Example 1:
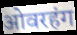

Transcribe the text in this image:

ओवरहंग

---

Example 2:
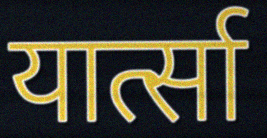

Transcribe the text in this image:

यार्त्सा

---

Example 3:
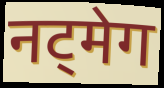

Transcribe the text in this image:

नट्मेग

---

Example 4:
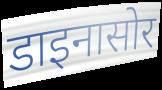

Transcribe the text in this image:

डाइनासोर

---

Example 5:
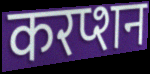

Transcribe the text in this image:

करप्‍शन